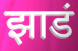
झाडं